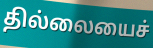
தில்லையைச்